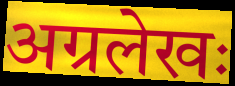
अग्रलेखः